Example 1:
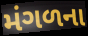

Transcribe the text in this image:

મંગળના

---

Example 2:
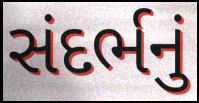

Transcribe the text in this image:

સંદર્ભનું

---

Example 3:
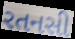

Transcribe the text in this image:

રતનસી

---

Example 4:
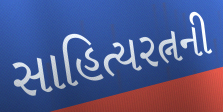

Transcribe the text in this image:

સાહિત્યરત્નની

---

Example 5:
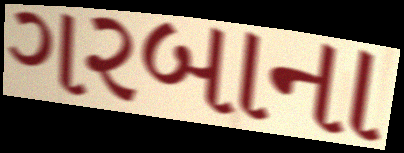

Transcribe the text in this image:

ગરબાના